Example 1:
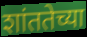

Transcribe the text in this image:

शांततेच्या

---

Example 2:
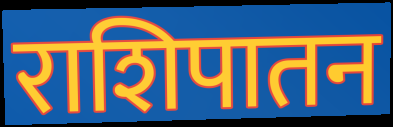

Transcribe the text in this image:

राशिपातन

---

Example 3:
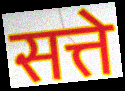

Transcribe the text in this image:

सत्ते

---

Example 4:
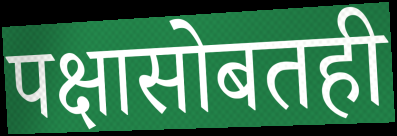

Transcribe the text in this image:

पक्षासोबतही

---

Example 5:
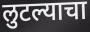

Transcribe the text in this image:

लुटल्याचा